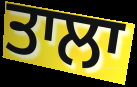
ਤਾਲਾ